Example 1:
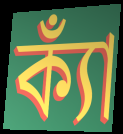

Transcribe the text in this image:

ক্যাঁ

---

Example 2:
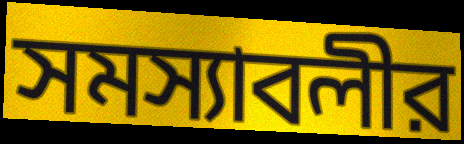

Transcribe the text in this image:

সমস্যাবলীর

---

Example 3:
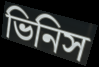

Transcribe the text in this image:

ভিনিস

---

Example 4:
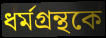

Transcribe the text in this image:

ধর্মগ্রন্থকে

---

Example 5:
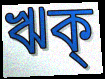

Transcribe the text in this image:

ঋক্